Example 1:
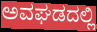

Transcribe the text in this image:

ಅವಘಡದಲ್ಲಿ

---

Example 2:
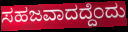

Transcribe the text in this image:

ಸಹಜವಾದದ್ದೆಂದು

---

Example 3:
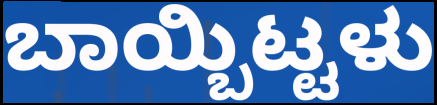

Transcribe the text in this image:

ಬಾಯ್ಬಿಟ್ಟಳು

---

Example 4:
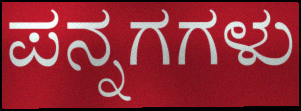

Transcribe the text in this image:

ಪನ್ನಗಗಳು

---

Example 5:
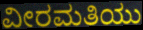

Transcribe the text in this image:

ವೀರಮತಿಯು